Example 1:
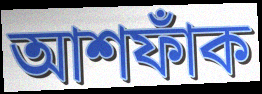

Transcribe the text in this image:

আশফাঁক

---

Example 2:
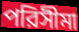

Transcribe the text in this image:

পরিসীমা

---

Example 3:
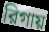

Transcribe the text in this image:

রিগায়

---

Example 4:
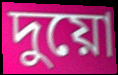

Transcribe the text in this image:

দুয়ো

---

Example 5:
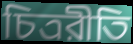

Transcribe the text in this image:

চিত্ররীতি